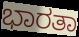
ಭಾರತಾ